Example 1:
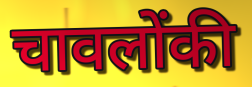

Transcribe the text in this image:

चावलोंकी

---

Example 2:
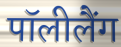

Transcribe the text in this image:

पॉलीलैंग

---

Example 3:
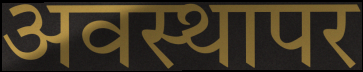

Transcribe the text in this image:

अवस्थापर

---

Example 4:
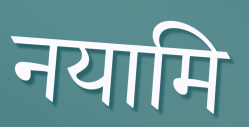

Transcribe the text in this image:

नयामि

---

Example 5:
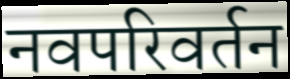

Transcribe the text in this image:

नवपरिवर्तन